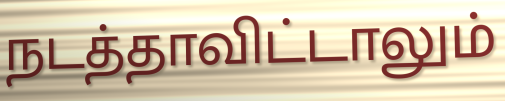
நடத்தாவிட்டாலும்